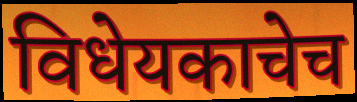
विधेयकाचेच